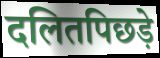
दलितपिछड़े